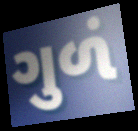
ગુળં